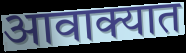
आवाक्‍यात